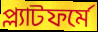
প্ল্যাটফর্মে